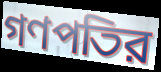
গণপতির